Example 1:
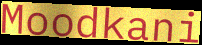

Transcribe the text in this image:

Moodkani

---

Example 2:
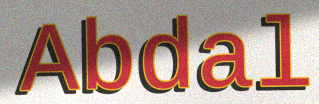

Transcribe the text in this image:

Abdal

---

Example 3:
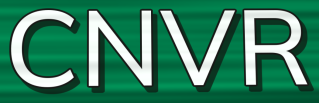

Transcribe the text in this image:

CNVR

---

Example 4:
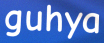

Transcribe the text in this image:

guhya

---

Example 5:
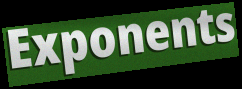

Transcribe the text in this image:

Exponents